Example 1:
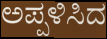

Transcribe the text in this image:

ಅಪ್ಪಳಿಸಿದ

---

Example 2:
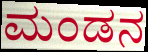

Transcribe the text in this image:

ಮಂಡನ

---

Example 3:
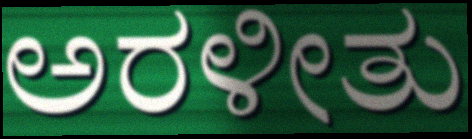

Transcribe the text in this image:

ಅರಳೀತು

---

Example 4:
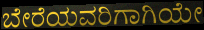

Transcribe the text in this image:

ಬೇರೆಯವರಿಗಾಗಿಯೇ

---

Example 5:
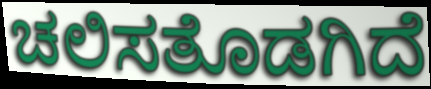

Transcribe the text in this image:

ಚಲಿಸತೊಡಗಿದೆ